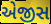
એજીસ